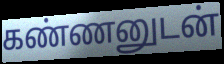
கண்ணனுடன்